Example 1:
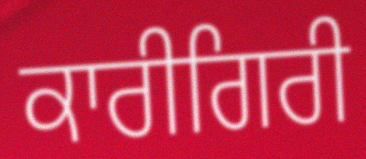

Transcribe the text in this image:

ਕਾਰੀਗਿਰੀ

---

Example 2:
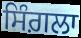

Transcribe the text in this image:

ਸਿੰਗ਼ਲਾ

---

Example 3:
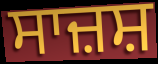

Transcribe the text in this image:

ਸਾਜ਼ਸ਼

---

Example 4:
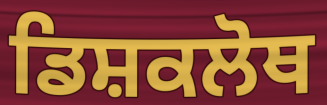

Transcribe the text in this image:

ਡਿਸ਼ਕਲੋਥ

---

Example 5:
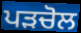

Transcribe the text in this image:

ਪੜਚੋਲ